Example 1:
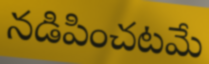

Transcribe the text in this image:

నడిపించటమే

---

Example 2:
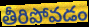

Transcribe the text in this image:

తీరిపోవడం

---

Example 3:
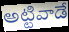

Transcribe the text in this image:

అట్టివాడే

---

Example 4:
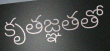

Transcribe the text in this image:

కృతజ్ఞతతో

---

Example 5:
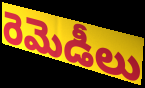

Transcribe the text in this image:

రెమెడీలు